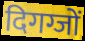
दिगग्जों